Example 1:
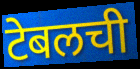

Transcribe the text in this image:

टेबलची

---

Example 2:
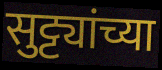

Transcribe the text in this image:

सुट्ट्यांच्या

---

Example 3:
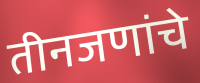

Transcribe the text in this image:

तीनजणांचे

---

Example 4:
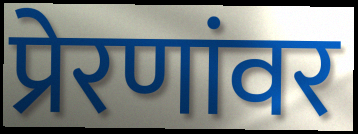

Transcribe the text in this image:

प्रेरणांवर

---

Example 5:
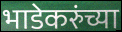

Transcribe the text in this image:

भाडेकरुंच्या